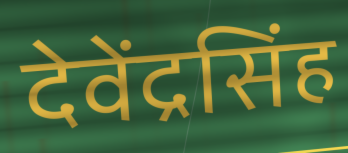
देवेंद्रसिंह